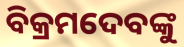
ବିକ୍ରମଦେବଙ୍କୁ